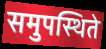
समुपस्थिते